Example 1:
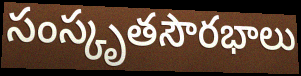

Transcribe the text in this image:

సంస్కృతసౌరభాలు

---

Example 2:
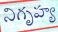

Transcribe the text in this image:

నిగృహ్య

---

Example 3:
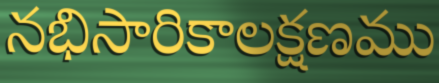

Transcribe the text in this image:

నభిసారికాలక్షణము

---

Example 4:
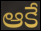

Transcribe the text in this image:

ఆకే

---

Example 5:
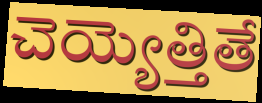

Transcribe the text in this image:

చెయ్యెత్తితే